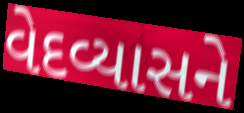
વેદવ્યાસને